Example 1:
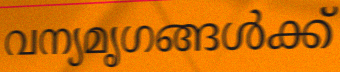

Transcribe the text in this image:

വന്യമൃഗങ്ങൾക്ക്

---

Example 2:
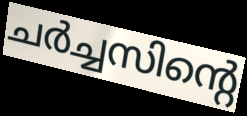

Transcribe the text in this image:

ചർച്ചസിന്റെ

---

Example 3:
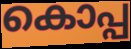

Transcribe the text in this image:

കൊപ്പ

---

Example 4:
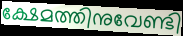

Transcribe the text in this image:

ക്ഷേമത്തിനുവേണ്ടി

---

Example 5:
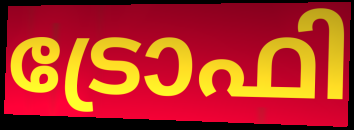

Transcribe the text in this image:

ട്രോഫി